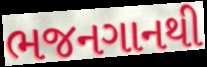
ભજનગાનથી